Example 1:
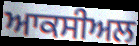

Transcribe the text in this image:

ਆਕਸੀਅਲ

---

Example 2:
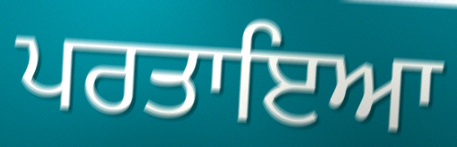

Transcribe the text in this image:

ਪਰਤਾਇਆ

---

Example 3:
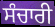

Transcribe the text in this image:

ਸੰਚਾਰੀ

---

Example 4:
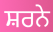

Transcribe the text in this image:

ਸ਼ਰਨੇ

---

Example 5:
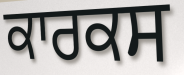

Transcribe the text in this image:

ਕਾਰਕਸ